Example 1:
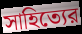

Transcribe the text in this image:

সাহিত্যের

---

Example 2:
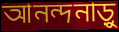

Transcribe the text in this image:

আনন্দনাড়ু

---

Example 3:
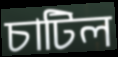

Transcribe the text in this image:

চাটিল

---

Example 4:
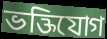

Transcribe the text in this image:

ভক্তিযোগ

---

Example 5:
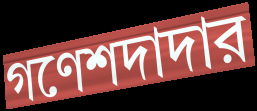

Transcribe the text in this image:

গণেশদাদার